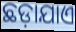
ଛଡ଼ାଯାଏ